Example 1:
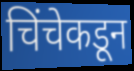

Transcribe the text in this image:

चिंचेकडून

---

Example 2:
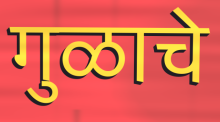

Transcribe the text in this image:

गुळाचे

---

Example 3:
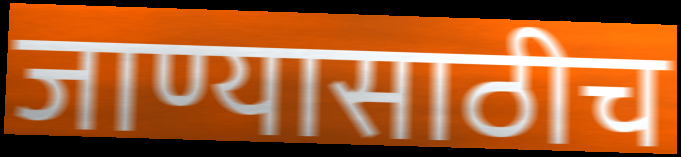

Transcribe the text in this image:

जाण्यासाठीच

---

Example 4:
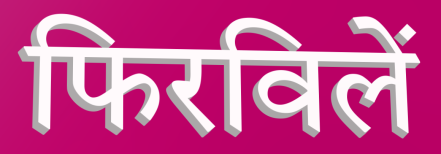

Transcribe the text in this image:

फिरविलें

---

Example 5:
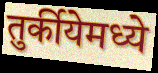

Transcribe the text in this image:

तुर्कीयेमध्ये